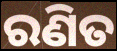
ରଣିତ